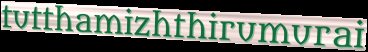
tutthamizhthirumurai